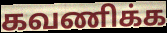
கவணிக்க